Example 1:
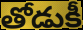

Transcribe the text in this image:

తోడుకీ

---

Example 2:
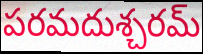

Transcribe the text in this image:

పరమదుశ్చరమ్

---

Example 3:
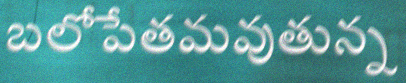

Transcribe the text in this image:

బలోపేతమవుతున్న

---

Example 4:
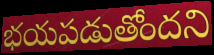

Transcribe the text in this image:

భయపడుతోందని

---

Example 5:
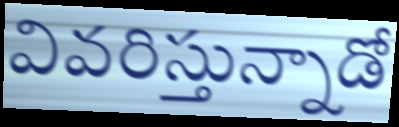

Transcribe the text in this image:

వివరిస్తున్నాడో